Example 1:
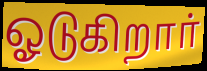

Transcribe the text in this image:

ஓடுகிறார்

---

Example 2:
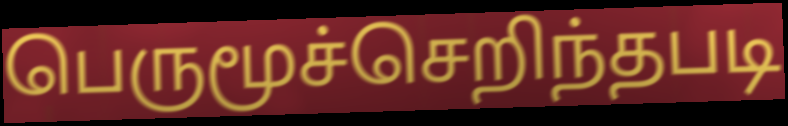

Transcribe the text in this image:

பெருமூச்செறிந்தபடி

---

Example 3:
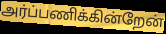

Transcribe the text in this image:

அர்ப்பணிக்கின்றேன்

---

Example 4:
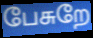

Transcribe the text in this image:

பேசுறே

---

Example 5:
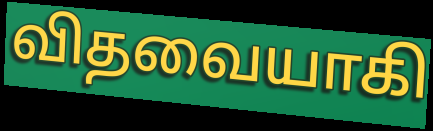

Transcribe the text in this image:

விதவையாகி